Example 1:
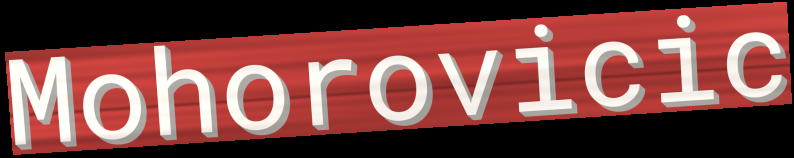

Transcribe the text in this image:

Mohorovicic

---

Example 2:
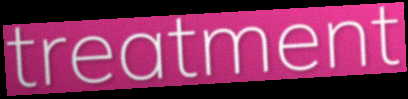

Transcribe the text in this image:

treatment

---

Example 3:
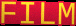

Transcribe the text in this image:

FILM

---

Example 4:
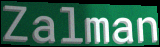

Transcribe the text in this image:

Zalman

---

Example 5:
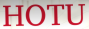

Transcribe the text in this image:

HOTU